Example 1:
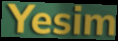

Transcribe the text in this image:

Yesim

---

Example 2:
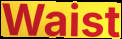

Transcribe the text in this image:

Waist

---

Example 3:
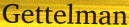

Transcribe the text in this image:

Gettelman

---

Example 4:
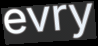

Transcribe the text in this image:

evry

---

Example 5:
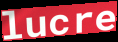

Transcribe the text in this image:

lucre